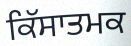
ਕਿੱਸਾਤਮਕ